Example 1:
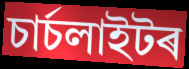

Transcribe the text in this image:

চাৰ্চলাইটৰ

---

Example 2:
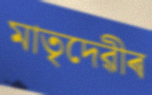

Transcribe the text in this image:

মাতৃদেৱীৰ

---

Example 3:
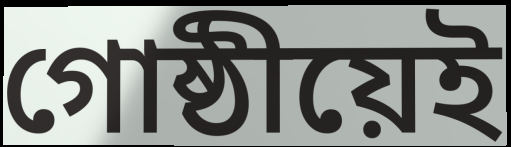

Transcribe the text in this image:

গোষ্ঠীয়েই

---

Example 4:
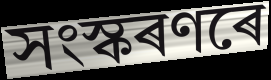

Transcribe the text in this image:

সংস্কৰণৰে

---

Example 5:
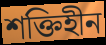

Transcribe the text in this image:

শক্তিহীন